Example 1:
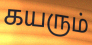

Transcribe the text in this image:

கயரும்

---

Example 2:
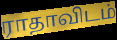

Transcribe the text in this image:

ராதாவிடம்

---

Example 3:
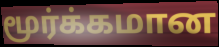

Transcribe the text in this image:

மூர்க்கமான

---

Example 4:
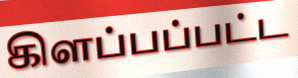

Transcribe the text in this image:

கிளப்பப்பட்ட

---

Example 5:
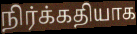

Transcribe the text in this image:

நிர்க்கதியாக